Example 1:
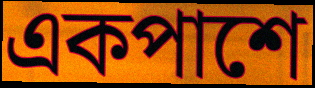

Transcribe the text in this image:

একপাশে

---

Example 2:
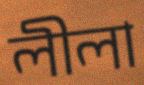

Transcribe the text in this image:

লীলা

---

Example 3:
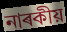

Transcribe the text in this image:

নাৰকীয়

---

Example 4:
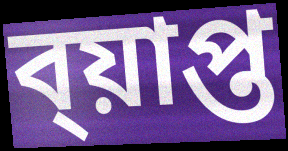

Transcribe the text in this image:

ব্য়াপ্ত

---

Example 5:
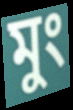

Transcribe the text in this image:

মুং